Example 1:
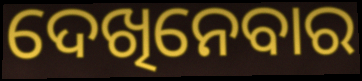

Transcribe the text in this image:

ଦେଖିନେବାର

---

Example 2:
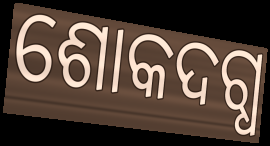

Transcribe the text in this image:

ଶୋକଦଗ୍ଧ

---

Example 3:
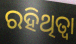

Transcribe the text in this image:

ରହିଥିତ୍ବା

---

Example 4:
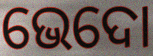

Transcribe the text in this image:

ଭେଦୋ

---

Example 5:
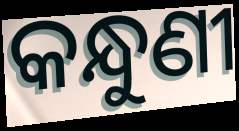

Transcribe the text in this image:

କନ୍ଧୁଣୀ